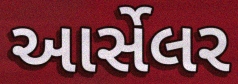
આર્સેલર